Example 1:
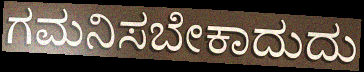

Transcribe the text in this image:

ಗಮನಿಸಬೇಕಾದುದು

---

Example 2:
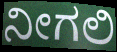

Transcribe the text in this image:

ನೀಗಲಿ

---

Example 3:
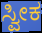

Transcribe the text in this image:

ಸ್ವೀಕ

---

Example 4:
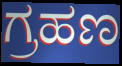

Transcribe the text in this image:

ಗ್ರಹಣ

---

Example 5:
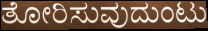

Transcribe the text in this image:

ತೋರಿಸುವುದುಂಟು